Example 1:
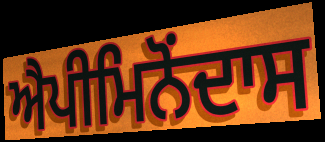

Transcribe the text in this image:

ਐਪੀਮਿਨੋਂਦਾਸ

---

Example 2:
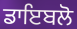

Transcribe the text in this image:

ਡਾਇਬਲੋ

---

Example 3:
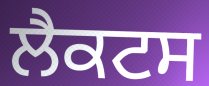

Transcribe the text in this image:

ਲੈਕਟਸ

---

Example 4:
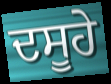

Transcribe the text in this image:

ਦਸੂਹੇ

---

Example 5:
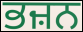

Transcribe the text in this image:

ਭਜ਼ਨ